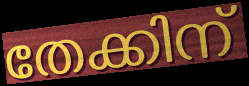
തേക്കിന്